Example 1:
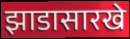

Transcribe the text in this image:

झाडासारखे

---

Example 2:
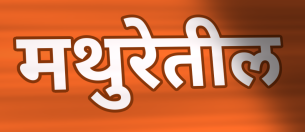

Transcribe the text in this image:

मथुरेतील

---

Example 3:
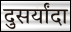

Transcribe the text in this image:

दुसर्यांदा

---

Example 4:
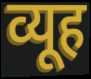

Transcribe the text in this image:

व्यूह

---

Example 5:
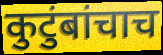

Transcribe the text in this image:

कुटुंबांचाच